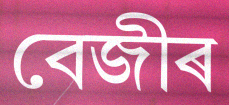
বেজীৰ